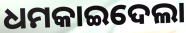
ଧମକାଇଦେଲା